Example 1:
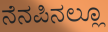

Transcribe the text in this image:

ನೆನಪಿನಲ್ಲೂ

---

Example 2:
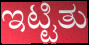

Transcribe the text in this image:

ಇಟ್ಟಿತು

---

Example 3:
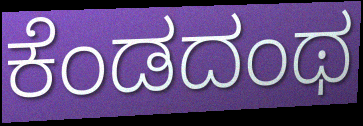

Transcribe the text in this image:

ಕೆಂಡದಂಥ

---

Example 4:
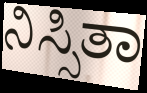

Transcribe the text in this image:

ನಿಸ್ಸಿತಾ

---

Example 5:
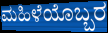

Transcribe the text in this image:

ಮಹಿಳೆಯೊಬ್ಬರ